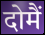
दोमैं